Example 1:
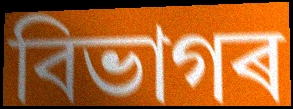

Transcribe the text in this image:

বিভাগৰ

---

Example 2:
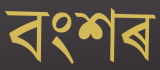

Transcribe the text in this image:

বংশৰ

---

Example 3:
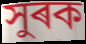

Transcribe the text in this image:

সুৰক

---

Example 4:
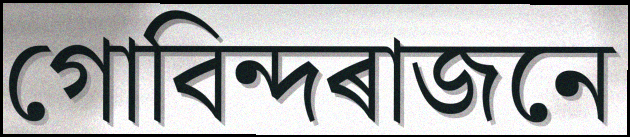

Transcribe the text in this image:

গোবিন্দৰাজনে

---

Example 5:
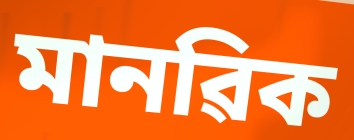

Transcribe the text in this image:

মানৱিক